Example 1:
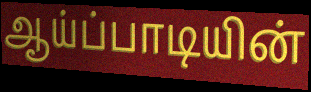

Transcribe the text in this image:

ஆய்ப்பாடியின்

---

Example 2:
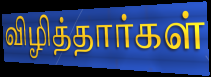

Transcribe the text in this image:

விழித்தார்கள்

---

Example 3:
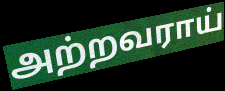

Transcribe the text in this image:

அற்றவராய்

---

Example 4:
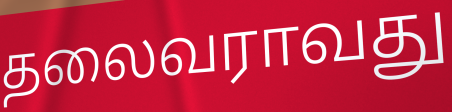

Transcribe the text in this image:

தலைவராவது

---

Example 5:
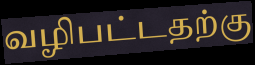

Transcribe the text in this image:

வழிபட்டதற்கு